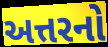
અત્તરનો